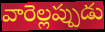
వారెల్లప్పుడు